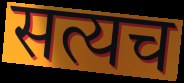
सत्यच